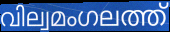
വില്വമംഗലത്ത്